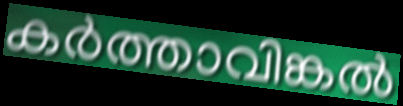
കർത്താവിങ്കൽ